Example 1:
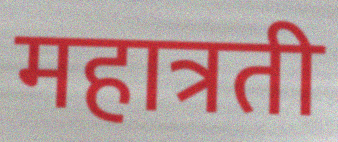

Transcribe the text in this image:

महात्रती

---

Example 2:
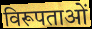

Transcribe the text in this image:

विरूपताओं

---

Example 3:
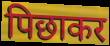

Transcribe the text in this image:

पिछाकर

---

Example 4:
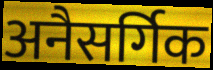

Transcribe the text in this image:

अनैसर्गिक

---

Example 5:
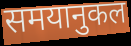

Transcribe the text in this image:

समयानुकल